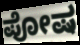
ಪೋಷ